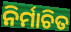
ନିର୍ମାଚିତ